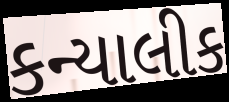
કન્યાલીક